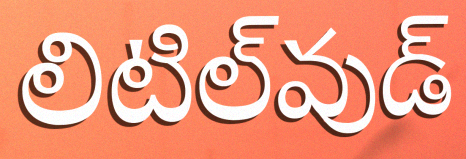
లిటిల్‌వుడ్